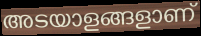
അടയാളങ്ങളാണ്